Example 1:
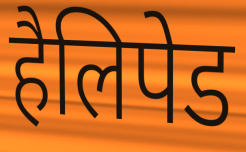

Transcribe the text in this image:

हैलिपेड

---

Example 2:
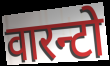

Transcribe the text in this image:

वारन्टो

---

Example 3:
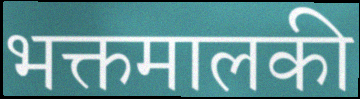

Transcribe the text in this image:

भक्तमालकी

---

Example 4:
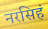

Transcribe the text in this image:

नरसिहं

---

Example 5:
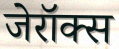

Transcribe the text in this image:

जेरॉक्स